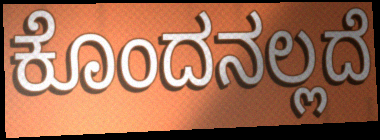
ಕೊಂದನಲ್ಲದೆ